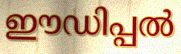
ഈഡിപ്പൽ